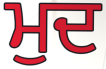
ਮੁਦ